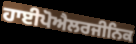
ਹਾਈਪੋਐਲਰਜੀਨਿਕ